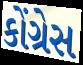
કોંગ્રેસ